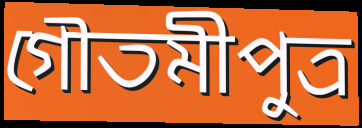
গৌতমীপুত্র